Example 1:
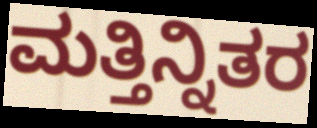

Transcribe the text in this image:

ಮತ್ತಿನ್ನಿತರ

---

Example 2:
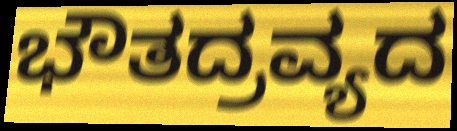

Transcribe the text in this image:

ಭೌತದ್ರವ್ಯದ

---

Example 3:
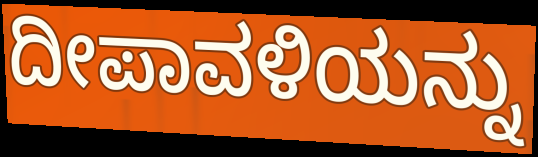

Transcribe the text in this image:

ದೀಪಾವಳಿಯನ್ನು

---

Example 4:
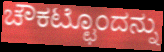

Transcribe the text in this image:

ಚೌಕಟ್ಟೊಂದನ್ನು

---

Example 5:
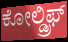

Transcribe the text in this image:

ಕೋಲ್ಡ್ರಿಫ್